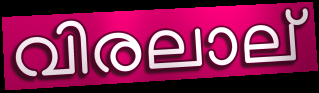
വിരലാല്